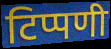
टिप्पणी